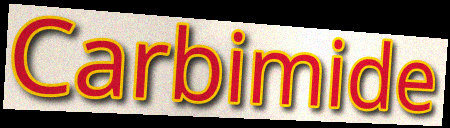
Carbimide